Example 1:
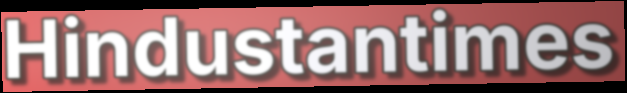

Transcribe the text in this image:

Hindustantimes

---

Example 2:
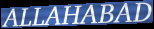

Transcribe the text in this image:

ALLAHABAD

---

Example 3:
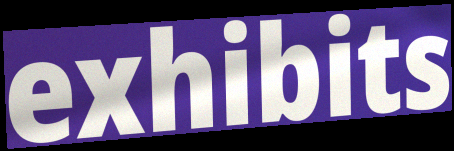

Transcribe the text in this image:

exhibits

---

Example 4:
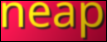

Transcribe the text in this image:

neap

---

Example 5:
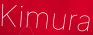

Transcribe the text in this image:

Kimura